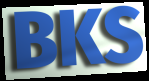
BKS